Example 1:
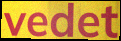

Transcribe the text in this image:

vedet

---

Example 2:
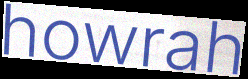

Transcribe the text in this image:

howrah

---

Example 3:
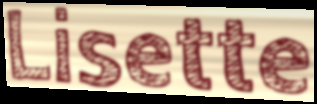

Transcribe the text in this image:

Lisette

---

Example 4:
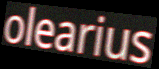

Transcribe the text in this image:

olearius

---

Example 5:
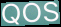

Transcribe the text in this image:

QOS